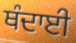
ਥੰਦਾਈ